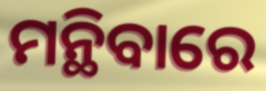
ମନ୍ଥିବାରେ